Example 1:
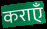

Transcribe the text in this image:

कराएँ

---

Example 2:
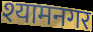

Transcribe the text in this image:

श्यामनगर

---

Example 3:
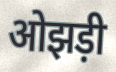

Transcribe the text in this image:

ओझड़ी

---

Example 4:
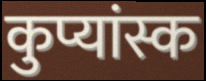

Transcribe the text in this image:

कुप्यांस्क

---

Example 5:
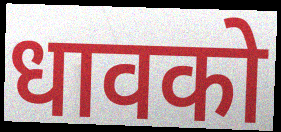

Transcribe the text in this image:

धावको